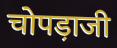
चोपड़ाजी